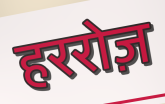
हररोज़